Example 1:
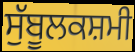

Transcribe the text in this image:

ਸੁੱਬੂਲਕਸ਼ਮੀ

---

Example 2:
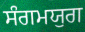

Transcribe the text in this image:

ਸੰਗਮਯੁਗ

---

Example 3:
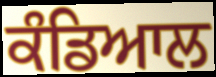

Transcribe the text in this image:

ਕੰਡਿਆਲ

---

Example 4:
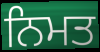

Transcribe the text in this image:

ਨਿਮਤ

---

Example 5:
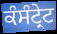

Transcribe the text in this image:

ਕੰਸੰਟ੍ਰੇਟ